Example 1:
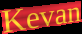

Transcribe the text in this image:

Kevan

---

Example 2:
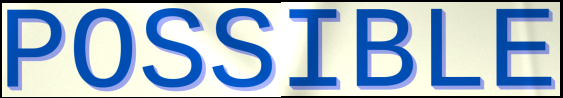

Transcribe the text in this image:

POSSIBLE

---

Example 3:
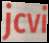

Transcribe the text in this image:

jcvi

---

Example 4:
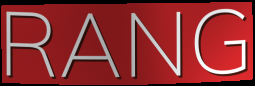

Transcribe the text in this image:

RANG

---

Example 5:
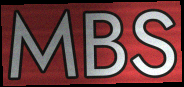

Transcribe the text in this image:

MBS